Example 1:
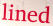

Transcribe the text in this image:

lined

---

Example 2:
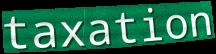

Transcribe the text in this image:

taxation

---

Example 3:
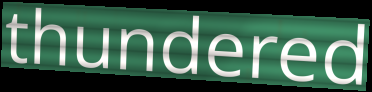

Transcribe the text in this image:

thundered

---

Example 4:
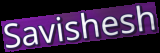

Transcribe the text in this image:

Savishesh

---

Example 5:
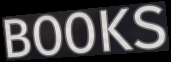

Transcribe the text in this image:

BOOKS